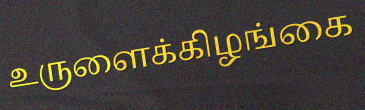
உருளைக்கிழங்கை